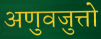
अणुवजुत्तो